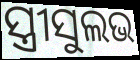
ସ୍ତ୍ରୀସୁଲଭ